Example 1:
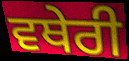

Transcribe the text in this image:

ਵਥੇਰੀ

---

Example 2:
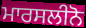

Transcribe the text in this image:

ਮਾਰਸਲੀਨੋ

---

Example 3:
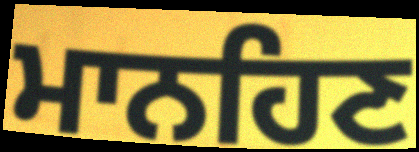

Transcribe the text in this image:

ਮਾਨਹਿਣ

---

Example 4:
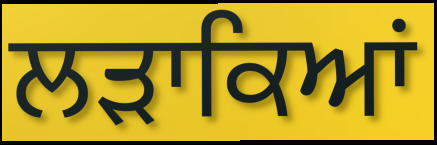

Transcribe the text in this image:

ਲੜਾਕਿਆਂ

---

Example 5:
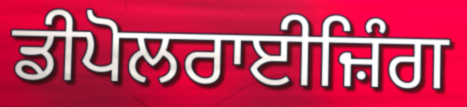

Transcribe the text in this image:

ਡੀਪੋਲਰਾਈਜ਼ਿੰਗ